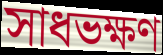
সাধভক্ষণ